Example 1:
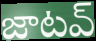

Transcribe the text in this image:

జాటవ్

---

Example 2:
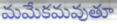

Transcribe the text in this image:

మమేకమవుతూ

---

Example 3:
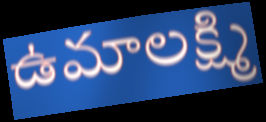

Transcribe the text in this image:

ఉమాలక్ష్మి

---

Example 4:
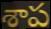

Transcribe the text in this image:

శాప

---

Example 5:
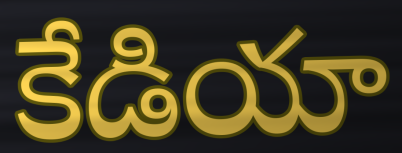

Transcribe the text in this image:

కేడియా